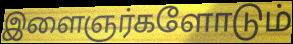
இளைஞர்களோடும்